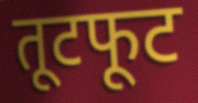
तूटफूट